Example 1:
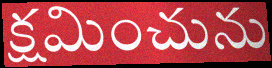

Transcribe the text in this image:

క్షమించును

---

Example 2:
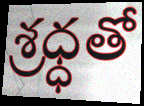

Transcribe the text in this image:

శ్రధ్ధతో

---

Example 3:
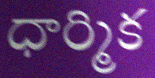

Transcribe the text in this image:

ధార్మిక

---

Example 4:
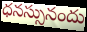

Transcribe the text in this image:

ధనస్సునందు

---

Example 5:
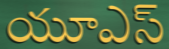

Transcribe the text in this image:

యూఎస్